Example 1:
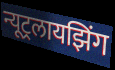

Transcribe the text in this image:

न्यूट्रलायझिंग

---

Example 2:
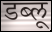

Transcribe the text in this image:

डब्लू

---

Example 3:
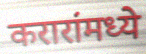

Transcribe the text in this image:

करारांमध्ये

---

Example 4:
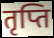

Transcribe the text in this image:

तृप्ति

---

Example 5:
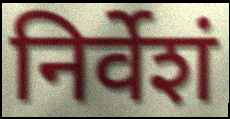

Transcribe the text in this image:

निर्वेशं